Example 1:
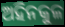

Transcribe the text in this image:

ଅହିନକୁଳ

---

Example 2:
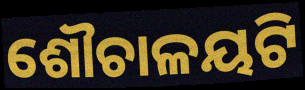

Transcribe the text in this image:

ଶୌଚାଳୟଟି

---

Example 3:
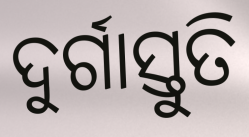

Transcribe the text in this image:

ଦୁର୍ଗାସ୍ତୁତି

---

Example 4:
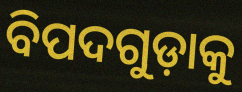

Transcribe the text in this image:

ବିପଦଗୁଡ଼ାକୁ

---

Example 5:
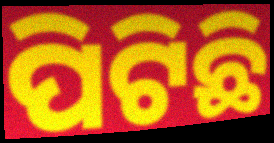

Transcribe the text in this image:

ପିଟିଛି